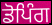
ਡੋਪਿੰਗ